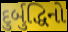
દુર્બુદ્ધિનો